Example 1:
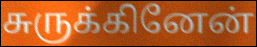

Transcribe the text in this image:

சுருக்கினேன்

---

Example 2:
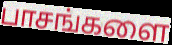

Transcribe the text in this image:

பாசங்களை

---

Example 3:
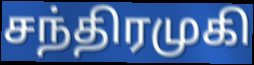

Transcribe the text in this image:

சந்திரமுகி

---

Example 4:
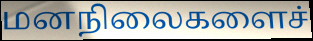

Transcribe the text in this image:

மனநிலைகளைச்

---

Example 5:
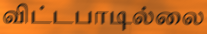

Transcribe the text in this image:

விட்டபாடில்லை